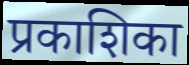
प्रकाशिका